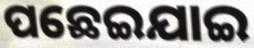
ପଛେଇଯାଇ